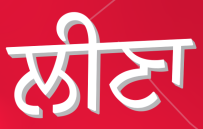
ਲੀਣਾ